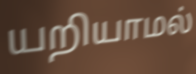
யறியாமல்